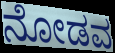
ನೋಡವ